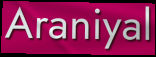
Araniyal